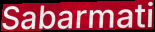
Sabarmati